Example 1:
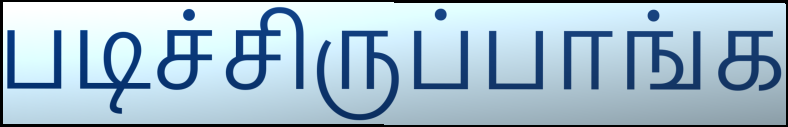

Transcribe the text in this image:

படிச்சிருப்பாங்க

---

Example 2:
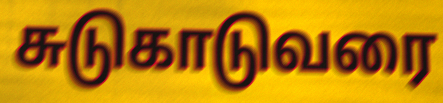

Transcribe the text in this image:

சுடுகாடுவரை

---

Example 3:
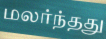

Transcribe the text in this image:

மலர்ந்தது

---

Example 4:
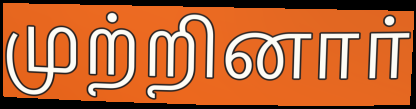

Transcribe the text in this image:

முற்றினார்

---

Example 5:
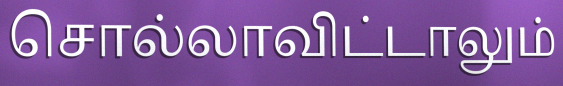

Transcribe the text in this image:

சொல்லாவிட்டாலும்